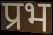
प्रभ